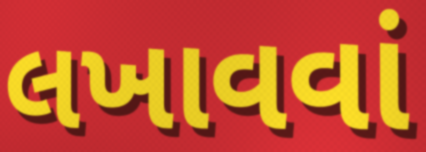
લખાવવાં